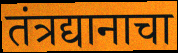
तंत्रद्यानाचा